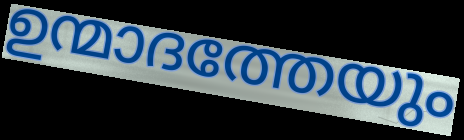
ഉന്മാദത്തേയും